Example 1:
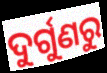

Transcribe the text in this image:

ଦୁର୍ଗୁଣରୁ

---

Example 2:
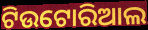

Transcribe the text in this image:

ଟିଉଟୋରିଆଲ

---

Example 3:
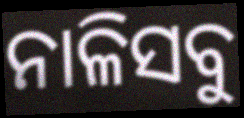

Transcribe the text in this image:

ନାଳିସବୁ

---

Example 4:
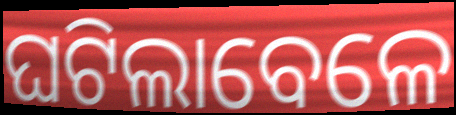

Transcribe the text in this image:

ଘଟିଲାବେଳେ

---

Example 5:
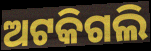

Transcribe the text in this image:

ଅଟକିଗଲି